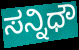
ಸನ್ನಿಧೌ